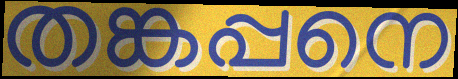
തങ്കപ്പനെ